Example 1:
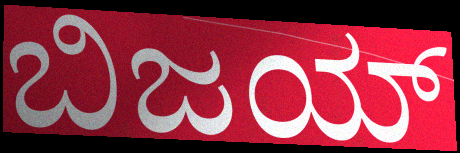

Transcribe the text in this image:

ಬಿಜಯ್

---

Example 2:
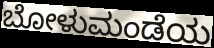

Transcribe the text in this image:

ಬೋಳುಮಂಡೆಯ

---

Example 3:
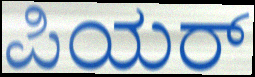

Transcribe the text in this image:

ಪಿಯರ್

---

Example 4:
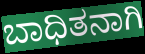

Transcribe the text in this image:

ಬಾಧಿತನಾಗಿ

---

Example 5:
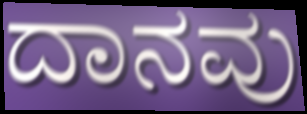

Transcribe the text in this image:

ದಾನವು